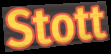
Stott